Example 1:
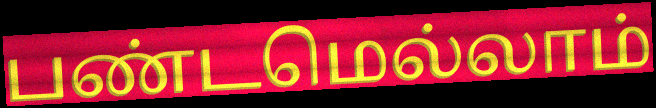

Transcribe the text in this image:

பண்டமெல்லாம்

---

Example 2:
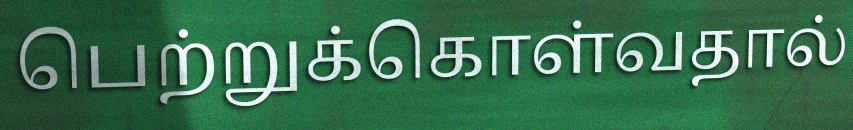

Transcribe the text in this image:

பெற்றுக்கொள்வதால்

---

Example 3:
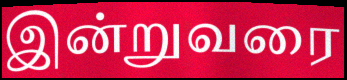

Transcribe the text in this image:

இன்றுவரை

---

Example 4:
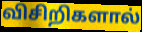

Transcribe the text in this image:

விசிறிகளால்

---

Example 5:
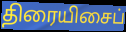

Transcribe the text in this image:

திரையிசைப்